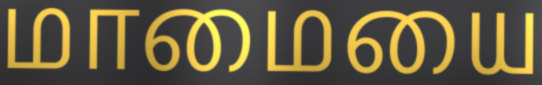
மாமையை